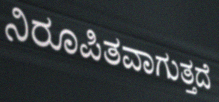
ನಿರೂಪಿತವಾಗುತ್ತದೆ